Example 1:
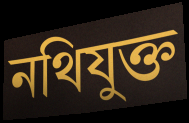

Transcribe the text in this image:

নথিযুক্ত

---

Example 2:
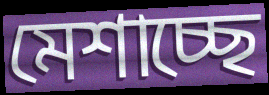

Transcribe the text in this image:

মেশাচ্ছে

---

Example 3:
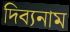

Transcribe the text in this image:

দিব্যনাম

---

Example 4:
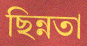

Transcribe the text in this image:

ছিন্নতা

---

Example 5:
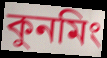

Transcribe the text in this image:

কুনমিং